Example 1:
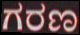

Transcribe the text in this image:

ಗರಣ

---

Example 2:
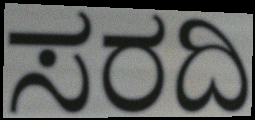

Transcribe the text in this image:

ಸರದಿ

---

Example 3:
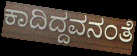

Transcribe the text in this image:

ಕಾದಿದ್ದವನಂತೆ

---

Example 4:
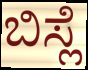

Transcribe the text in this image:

ಬಿಸ್ಲೆ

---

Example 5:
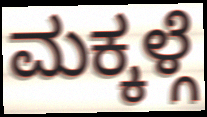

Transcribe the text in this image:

ಮಕ್ಕಳ್ಗೆ